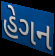
હેગન